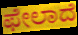
ಫೇಲಾದೆ